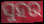
ସୁହଉ